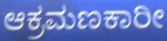
ಆಕ್ರಮಣಕಾರೀ